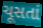
ચૂસતાં